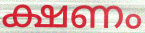
ക്ഷണം